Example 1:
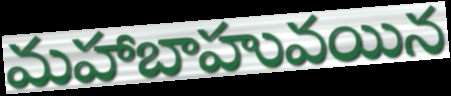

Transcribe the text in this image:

మహాబాహువయిన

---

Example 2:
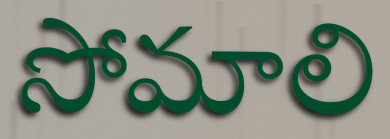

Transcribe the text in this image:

సోమాలి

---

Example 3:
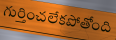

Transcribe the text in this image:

గుర్తించలేకపోతోంది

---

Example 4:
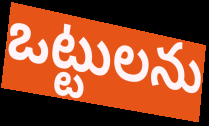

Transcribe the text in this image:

ఒట్టులను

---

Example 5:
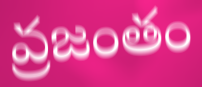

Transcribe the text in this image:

వ్రజంతం